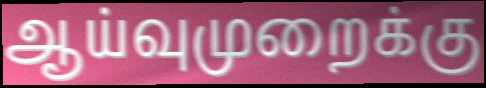
ஆய்வுமுறைக்கு